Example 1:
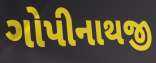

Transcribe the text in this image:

ગોપીનાથજી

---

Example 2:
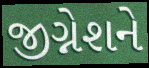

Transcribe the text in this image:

જીગ્નેશને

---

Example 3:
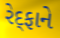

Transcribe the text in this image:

રેદ્ફાને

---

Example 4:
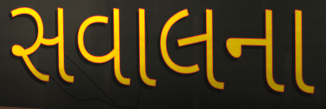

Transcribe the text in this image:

સવાલના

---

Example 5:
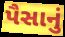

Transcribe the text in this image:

પૈસાનું